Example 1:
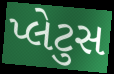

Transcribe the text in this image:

પ્લેટુસ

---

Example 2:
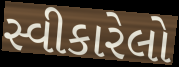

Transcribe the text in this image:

સ્વીકારેલો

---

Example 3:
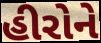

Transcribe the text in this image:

હીરોને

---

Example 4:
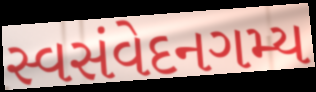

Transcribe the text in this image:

સ્વસંવેદનગમ્ય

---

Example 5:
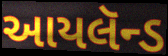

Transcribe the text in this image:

આયલૅન્ડ